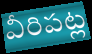
వీరిపట్ల